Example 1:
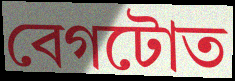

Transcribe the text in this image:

বেগটোত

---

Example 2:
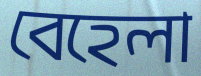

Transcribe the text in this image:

বেহেলা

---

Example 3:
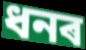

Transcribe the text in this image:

ধনৰ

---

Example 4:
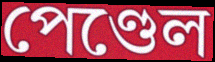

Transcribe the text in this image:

পেণ্ডেল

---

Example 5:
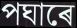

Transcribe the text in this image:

পঘাৰে